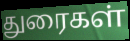
துரைகள்